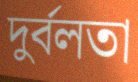
দুৰ্বলতা